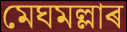
মেঘমল্লাৰ